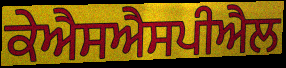
ਕੇਐਸਐਸਪੀਐਲ